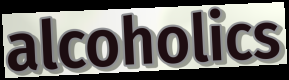
alcoholics